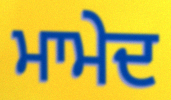
ਮਾਮੇਦ